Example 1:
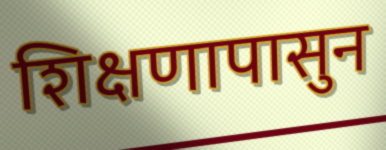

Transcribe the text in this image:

शिक्षणापासुन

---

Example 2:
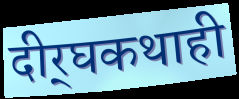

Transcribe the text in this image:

दीर्घकथाही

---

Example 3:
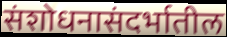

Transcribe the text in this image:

संशोधनासंदर्भातील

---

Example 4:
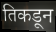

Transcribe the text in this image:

तिकडून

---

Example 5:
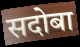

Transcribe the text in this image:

सदोबा